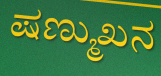
ಷಣ್ಮುಖನ